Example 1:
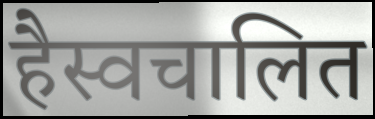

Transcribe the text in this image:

हैस्वचालित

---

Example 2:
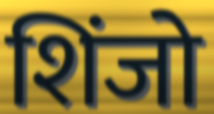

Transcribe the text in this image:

शिंजो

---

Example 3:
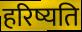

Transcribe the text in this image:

हरिष्यति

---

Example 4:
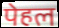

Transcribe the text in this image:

पेहल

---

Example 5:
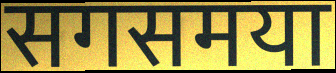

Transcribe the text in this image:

सगसमया